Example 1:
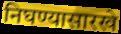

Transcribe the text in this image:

निघण्यासारखे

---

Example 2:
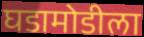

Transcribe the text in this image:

घडामोडीला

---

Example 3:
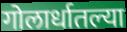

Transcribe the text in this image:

गोलार्धातल्या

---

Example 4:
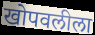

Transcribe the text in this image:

खोपवलीला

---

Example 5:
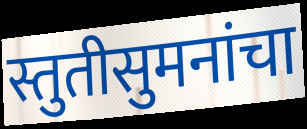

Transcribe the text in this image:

स्तुतीसुमनांचा